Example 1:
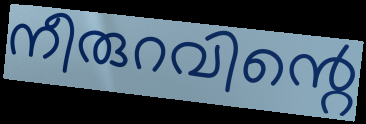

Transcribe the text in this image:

നീരുറവിന്റെ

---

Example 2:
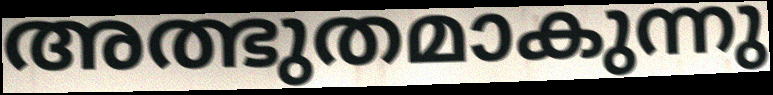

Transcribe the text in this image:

അത്ഭുതമാകുന്നു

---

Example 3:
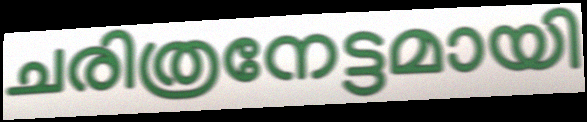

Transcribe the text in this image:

ചരിത്രനേട്ടമായി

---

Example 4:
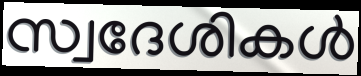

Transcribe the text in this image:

സ്വദേശികൾ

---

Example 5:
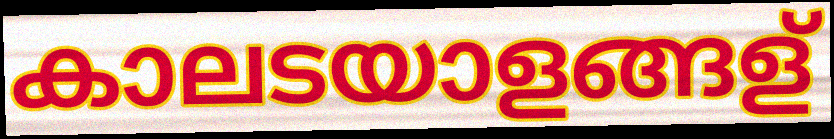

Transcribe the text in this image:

കാലടയാളങ്ങള്